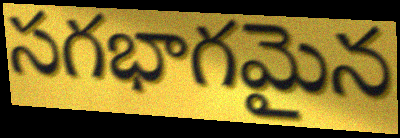
సగభాగమైన